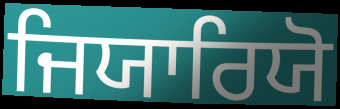
ਜਿਯਾਰਿਯੋ